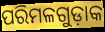
ପରିମଳଗୁଡ଼ାକ